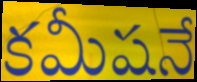
కమీషనే